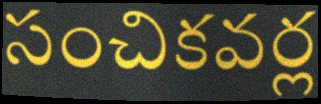
సంచికవర్ల